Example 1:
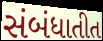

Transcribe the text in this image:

સંબંધાતીત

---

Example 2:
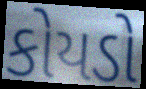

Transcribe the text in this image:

કોયડો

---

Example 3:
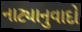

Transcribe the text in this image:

નાટ્યાનુવાદો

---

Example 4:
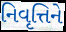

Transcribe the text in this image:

નિવૃત્તિને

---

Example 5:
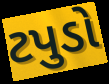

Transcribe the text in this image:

ટપુડો